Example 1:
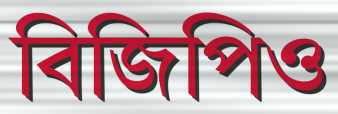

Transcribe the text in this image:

বিজিপিও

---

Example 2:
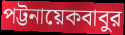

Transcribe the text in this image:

পট্টনায়েকবাবুর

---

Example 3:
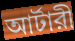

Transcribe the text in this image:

আর্টারী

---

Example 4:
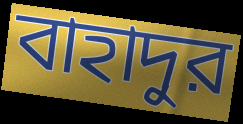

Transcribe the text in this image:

বাহাদুর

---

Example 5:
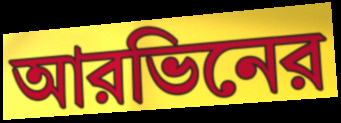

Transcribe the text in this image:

আরভিনের